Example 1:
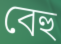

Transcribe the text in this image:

বেহু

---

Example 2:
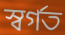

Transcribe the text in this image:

স্বৰ্গত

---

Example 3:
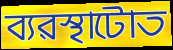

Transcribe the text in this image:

ব্যৱস্থাটোত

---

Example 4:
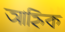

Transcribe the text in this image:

আহ্নিক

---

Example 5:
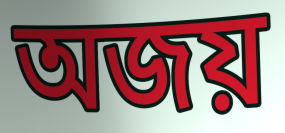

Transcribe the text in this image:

অজয়